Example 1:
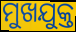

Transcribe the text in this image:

ମୁଖଯୁକ୍ତ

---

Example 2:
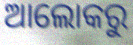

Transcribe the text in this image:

ଆଲୋକରୁ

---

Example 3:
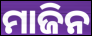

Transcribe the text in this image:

ମାଜିନ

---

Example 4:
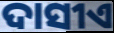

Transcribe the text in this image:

ଦାସୀଏ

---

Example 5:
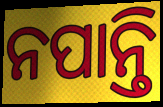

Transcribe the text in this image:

ନପାନ୍ତି